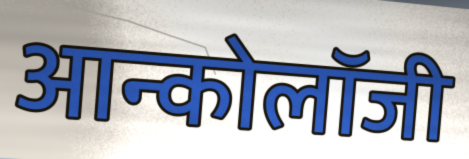
आन्कोलॉजी